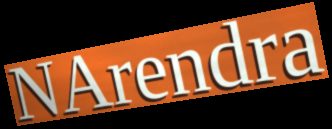
NArendra